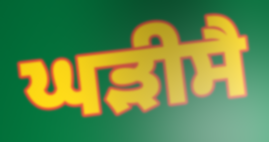
ਘੜੀਸੈ